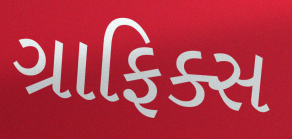
ગ્રાફિક્સ